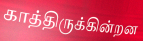
காத்திருக்கின்றன